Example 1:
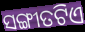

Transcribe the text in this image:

ସଙ୍ଗୀତଟିଏ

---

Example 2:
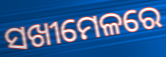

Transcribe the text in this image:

ସଖୀମେଳରେ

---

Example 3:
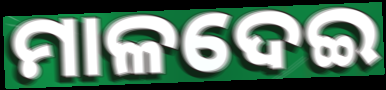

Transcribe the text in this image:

ମାଳଦେଇ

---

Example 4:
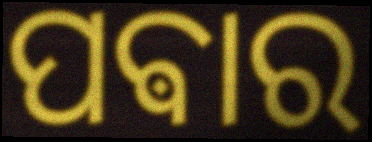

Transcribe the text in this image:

ପଵାର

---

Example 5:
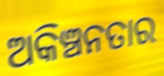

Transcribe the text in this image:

ଅକିଞ୍ଚନତାର